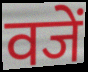
वजें